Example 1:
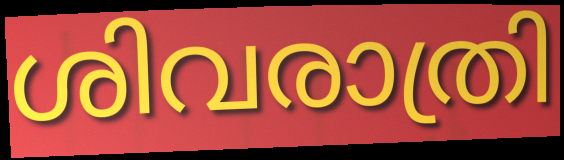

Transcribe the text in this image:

ശിവരാത്രി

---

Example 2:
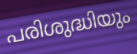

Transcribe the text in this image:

പരിശുദ്ധിയും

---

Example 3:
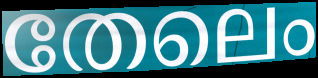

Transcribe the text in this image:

തേലെം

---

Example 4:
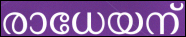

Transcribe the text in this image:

രാധേയന്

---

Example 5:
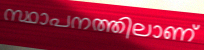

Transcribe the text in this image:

സ്ഥാപനത്തിലാണ്